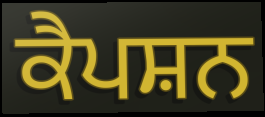
ਕੈਪਸ਼ਨ